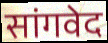
सांगवेद